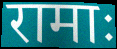
रामाः